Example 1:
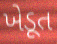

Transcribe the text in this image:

ખેડૂત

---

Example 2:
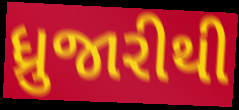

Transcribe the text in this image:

ધ્રુજારીથી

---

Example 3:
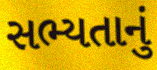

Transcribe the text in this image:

સભ્યતાનું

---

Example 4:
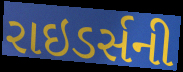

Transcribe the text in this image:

રાઇડર્સની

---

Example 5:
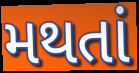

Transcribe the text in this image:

મથતાં